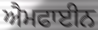
ਐਮਫਾਈਨ